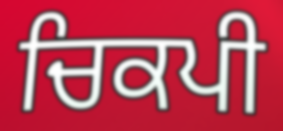
ਚਿਕਪੀ